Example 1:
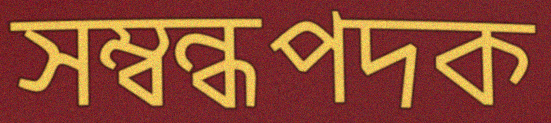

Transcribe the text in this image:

সম্বন্ধপদক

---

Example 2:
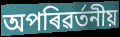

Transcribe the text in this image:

অপৰিৱৰ্তনীয়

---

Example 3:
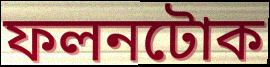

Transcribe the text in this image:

ফলনটোক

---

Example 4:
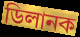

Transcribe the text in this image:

ডিলানক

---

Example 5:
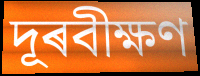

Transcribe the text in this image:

দূৰবীক্ষণ